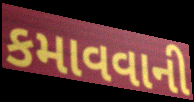
કમાવવાની